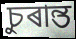
চুৰান্ত